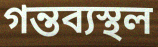
গন্তব্যস্থল